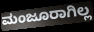
ಮಂಜೂರಾಗಿಲ್ಲ